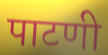
पाटणी